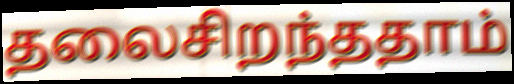
தலைசிறந்ததாம்